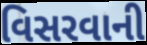
વિસરવાની